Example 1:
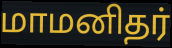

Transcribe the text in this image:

மாமனிதர்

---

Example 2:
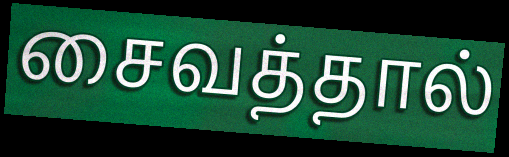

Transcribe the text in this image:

சைவத்தால்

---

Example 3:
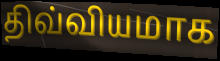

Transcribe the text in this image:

திவ்வியமாக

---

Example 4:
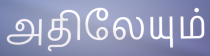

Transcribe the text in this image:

அதிலேயும்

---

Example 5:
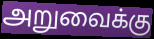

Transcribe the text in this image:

அறுவைக்கு